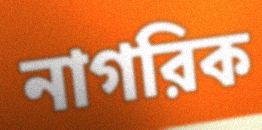
নাগরিক